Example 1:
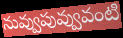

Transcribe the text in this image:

నువ్వుపువ్వువంటి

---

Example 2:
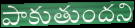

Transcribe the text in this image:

పాకుతుందని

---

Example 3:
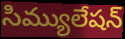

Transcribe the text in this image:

సిమ్యులేషన్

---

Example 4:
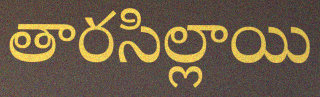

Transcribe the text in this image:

తారసిల్లాయి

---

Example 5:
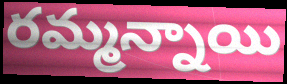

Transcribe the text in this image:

రమ్మన్నాయి